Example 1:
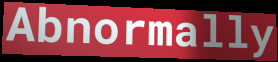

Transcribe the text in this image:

Abnormally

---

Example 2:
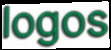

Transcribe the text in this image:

logos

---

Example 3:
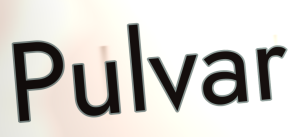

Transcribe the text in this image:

Pulvar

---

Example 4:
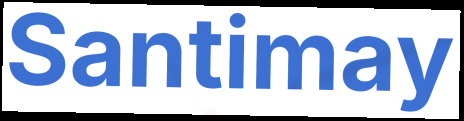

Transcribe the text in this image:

Santimay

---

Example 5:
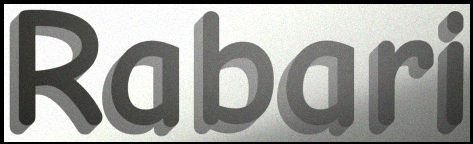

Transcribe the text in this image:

Rabari